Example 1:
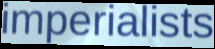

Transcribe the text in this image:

imperialists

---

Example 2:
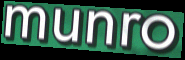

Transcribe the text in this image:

munro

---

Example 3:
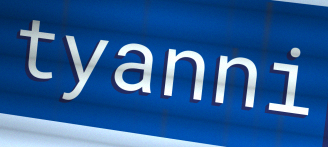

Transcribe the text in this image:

tyanni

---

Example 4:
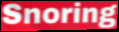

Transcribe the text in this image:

Snoring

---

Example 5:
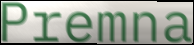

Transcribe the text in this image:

Premna